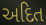
અદિત